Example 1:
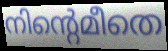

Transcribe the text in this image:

നിന്റെമീതെ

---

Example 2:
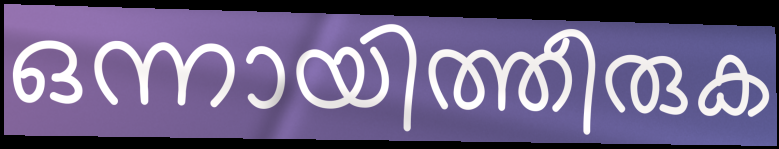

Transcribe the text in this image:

ഒന്നായിത്തീരുക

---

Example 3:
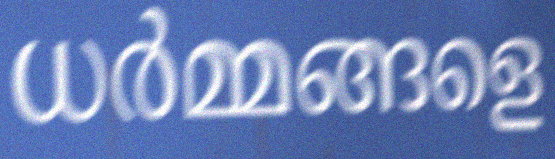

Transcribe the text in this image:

ധർമ്മങ്ങളെ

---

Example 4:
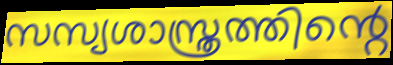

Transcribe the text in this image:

സസ്യശാസ്ത്രത്തിന്റെ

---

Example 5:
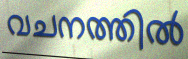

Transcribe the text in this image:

വചനത്തിൽ